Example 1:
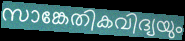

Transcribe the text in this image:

സാങ്കേതികവിദ്യയും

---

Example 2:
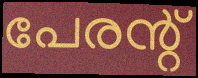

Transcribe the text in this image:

പേരന്റ്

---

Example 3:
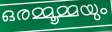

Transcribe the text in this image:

ഒരമ്മൂമ്മയും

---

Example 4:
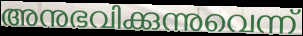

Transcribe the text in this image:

അനുഭവിക്കുന്നുവെന്ന്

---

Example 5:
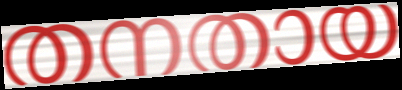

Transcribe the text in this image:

തനതായ